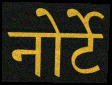
नोर्टे